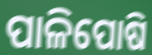
ପାଳିପୋଷି